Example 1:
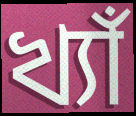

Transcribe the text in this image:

খ্যাঁ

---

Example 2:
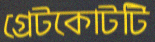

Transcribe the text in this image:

গ্রেটকোটটি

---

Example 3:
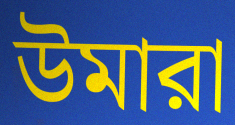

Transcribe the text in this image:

উমারা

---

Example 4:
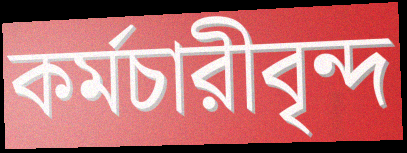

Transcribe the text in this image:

কর্মচারীবৃন্দ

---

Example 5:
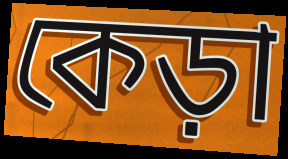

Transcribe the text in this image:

কেড়া